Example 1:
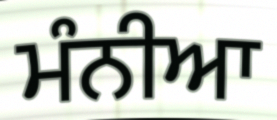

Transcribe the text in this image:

ਮੰਨੀਆ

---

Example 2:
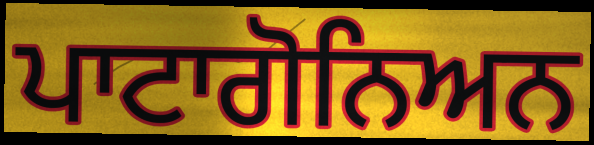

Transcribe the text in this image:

ਪਾਟਾਗੋਨਿਅਨ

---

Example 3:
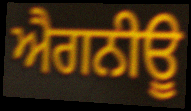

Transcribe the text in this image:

ਐਗਨੀਊ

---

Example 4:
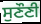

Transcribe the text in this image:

ਸੁਣੌਣੀ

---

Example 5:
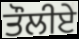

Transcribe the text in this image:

ਤੌਲੀਏ